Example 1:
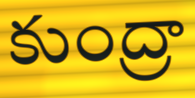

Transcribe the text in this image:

కుంద్రా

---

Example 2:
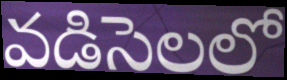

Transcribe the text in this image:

వడిసెలలో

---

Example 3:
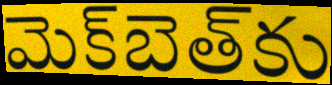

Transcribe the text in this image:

మెక్‌బెత్‌కు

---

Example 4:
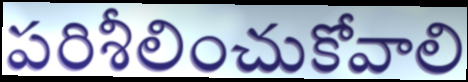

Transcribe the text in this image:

పరిశీలించుకోవాలి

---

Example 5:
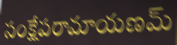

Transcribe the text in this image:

సంక్షేపరామాయణమ్